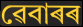
ৱেবাৰৰ